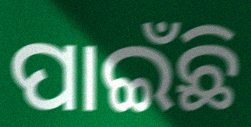
ପାଇଁଛି